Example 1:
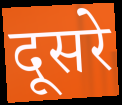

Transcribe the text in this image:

दूसरे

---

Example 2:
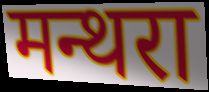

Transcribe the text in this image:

मन्थरा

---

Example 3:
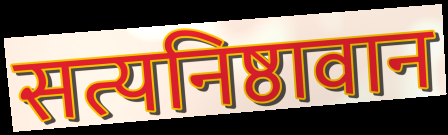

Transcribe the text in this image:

सत्यनिष्ठावान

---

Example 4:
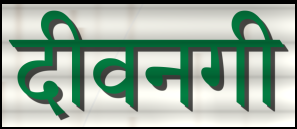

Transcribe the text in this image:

दीवनगी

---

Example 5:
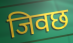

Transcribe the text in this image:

जिवछ